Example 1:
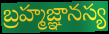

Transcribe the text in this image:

బ్రహ్మజ్ఞానస్య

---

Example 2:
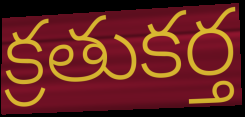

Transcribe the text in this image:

క్రతుకర్త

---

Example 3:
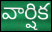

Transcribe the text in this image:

వార్షిక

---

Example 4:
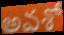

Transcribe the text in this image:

అవశో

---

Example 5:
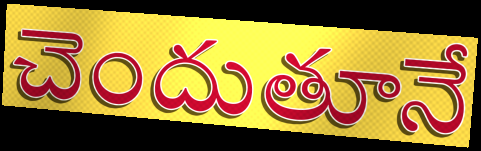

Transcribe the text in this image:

చెందుతూనే